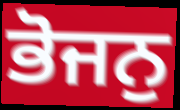
ਭੋਜਨੁ